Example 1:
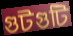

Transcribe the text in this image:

গুটগুটি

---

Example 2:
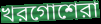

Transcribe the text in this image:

খরগোশেরা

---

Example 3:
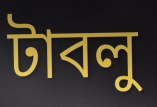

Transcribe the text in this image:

টাবলু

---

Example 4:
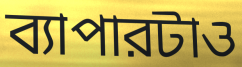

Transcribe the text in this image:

ব্যাপারটাও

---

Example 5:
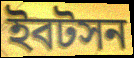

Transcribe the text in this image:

ইবটসন